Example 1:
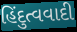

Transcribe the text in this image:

હિંદુત્વવાદી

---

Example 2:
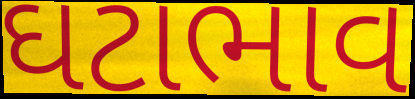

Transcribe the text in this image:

ઘટાભાવ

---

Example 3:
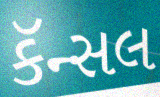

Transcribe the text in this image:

કૅન્સલ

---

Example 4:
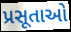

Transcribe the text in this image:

પ્રસૂતાઓ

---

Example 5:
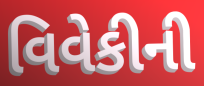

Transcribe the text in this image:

વિવેકીની